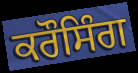
ਕਰੌਸਿੰਗ